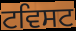
ਟਵਿਸਟ